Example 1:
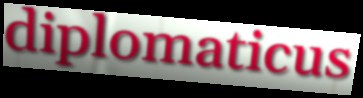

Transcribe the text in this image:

diplomaticus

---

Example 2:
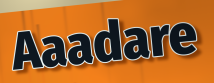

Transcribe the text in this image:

Aaadare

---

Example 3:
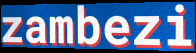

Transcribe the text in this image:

zambezi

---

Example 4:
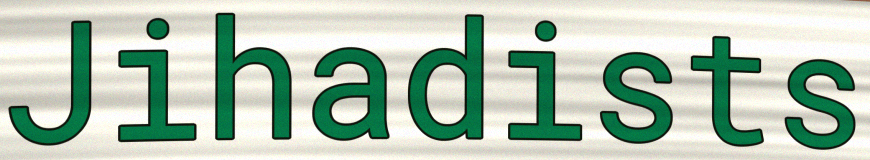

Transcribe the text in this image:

Jihadists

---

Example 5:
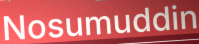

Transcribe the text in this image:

Nosumuddin